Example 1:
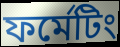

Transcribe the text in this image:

ফর্মেটিং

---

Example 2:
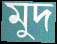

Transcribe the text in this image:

মুদ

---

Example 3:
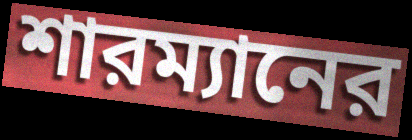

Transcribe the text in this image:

শারম্যানের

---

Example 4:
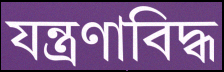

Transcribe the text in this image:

যন্ত্রণাবিদ্ধ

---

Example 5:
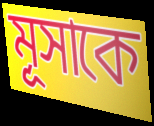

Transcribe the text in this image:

মূসাকে